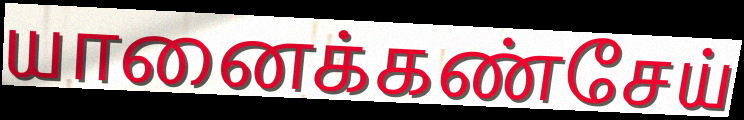
யானைக்கண்சேய்